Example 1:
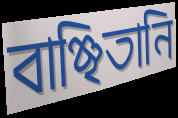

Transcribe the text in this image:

বাঞ্ছিতানি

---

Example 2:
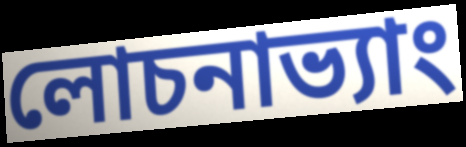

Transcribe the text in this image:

লোচনাভ্যাং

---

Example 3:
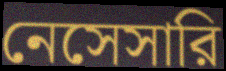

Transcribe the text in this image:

নেসেসারি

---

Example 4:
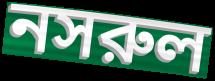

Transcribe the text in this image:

নসরুল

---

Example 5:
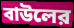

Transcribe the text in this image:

বাউলের